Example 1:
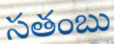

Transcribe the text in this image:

సతంబు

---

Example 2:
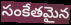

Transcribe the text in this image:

సంకేతమైన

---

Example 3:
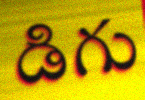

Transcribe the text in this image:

డిగు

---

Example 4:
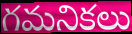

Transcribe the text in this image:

గమనికలు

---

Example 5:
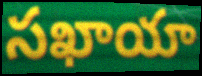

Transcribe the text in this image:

సఖాయా